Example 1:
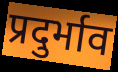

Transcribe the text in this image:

प्रदुर्भाव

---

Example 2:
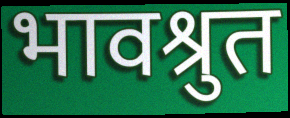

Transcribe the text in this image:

भावश्रुत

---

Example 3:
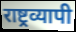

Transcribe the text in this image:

राष्ट्रव्यापी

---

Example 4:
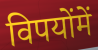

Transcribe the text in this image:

विपयोंमें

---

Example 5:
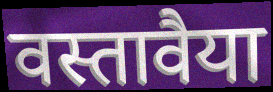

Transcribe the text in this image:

वस्तावैया